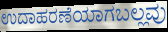
ಉದಾಹರಣೆಯಾಗಬಲ್ಲವು